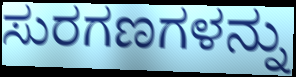
ಸುರಗಣಗಳನ್ನು